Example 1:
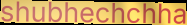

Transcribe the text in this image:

shubhechchha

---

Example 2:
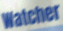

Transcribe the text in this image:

Watcher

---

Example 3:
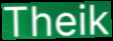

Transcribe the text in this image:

Theik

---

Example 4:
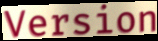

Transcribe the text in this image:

Version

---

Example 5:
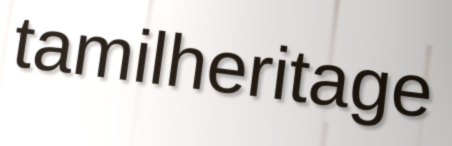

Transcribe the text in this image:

tamilheritage